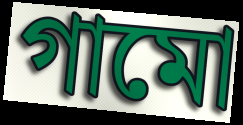
গামো